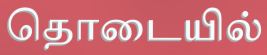
தொடையில்